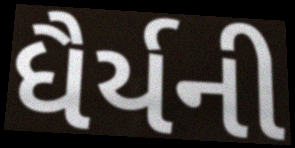
ધૈર્યની